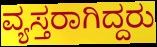
ವ್ಯಸ್ತರಾಗಿದ್ದರು